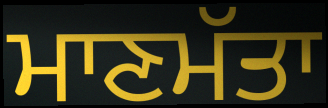
ਮਾਣਮੱਤਾ